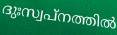
ദുഃസ്വപ്നത്തിൽ